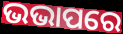
ଭଭାପରେ